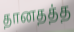
தானதத்த